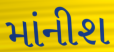
માંનીશ